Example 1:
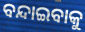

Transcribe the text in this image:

ବନ୍ଦାଇବାକୁ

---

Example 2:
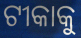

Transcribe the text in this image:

ଟୀକାକୁ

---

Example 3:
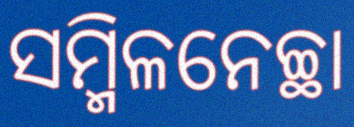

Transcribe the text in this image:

ସମ୍ମିଳନେଚ୍ଛା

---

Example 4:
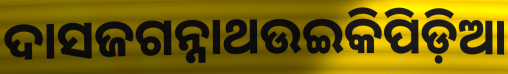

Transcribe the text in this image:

ଦାସଜଗନ୍ନାଥଉଇକିପିଡ଼ିଆ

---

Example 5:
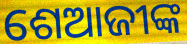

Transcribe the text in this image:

ଶେଆଜୀଙ୍କ